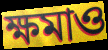
ক্ষমাও